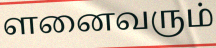
ளனைவரும்